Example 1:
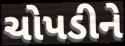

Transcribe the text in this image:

ચોપડીને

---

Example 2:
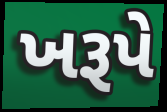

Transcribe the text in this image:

ખરૂપે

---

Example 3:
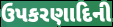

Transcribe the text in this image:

ઉપકરણાદિની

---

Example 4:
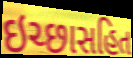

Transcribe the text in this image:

ઇચ્છાસહિત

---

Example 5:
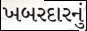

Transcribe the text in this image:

ખબરદારનું